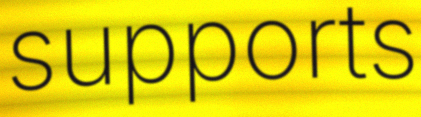
supports